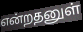
என்றதனுள்